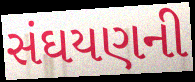
સંઘયણની